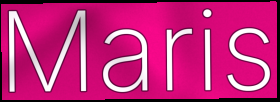
Maris